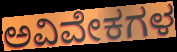
ಅವಿವೇಕಗಳ